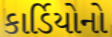
કાર્ડિયોનો